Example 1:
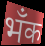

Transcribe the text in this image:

भँक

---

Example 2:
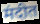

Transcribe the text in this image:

मंदीत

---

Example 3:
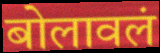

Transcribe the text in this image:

बोलावलं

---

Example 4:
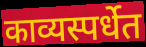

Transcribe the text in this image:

काव्यस्पर्धेत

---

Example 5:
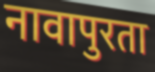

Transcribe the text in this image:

नावापुरता